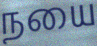
நயை